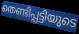
തെണ്ടിപ്പട്ടിയുടെ